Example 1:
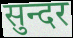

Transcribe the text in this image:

सुन्‍दर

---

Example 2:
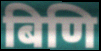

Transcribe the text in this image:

बिणि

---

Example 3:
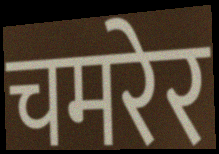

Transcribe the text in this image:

चमरेर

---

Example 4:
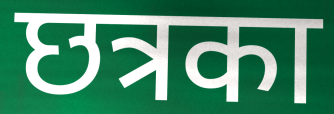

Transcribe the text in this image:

छत्रका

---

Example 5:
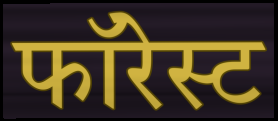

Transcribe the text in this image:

फॉरेस्‍ट